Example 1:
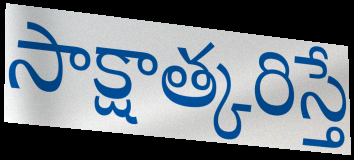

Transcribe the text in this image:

సాక్షాత్కరిస్తే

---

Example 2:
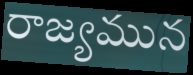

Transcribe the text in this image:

రాజ్యమున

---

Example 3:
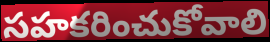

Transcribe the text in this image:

సహకరించుకోవాలి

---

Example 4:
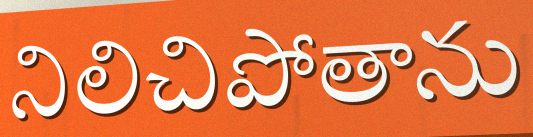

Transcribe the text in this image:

నిలిచిపోతాను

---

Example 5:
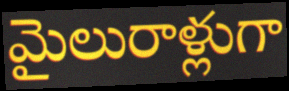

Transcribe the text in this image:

మైలురాళ్లుగా